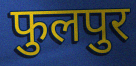
फुलपुर